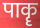
पाकॄ